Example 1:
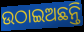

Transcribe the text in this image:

ଉଠାଇଅଛନ୍ତି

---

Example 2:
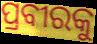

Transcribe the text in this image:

ପ୍ରବୀରକୁ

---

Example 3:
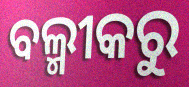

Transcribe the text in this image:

ବଲ୍ମୀକରୁ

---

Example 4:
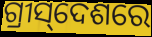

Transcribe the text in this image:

ଗ୍ରୀସ୍‌ଦେଶରେ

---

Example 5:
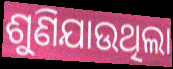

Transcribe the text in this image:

ଶୁଣିଯାଉଥିଲା